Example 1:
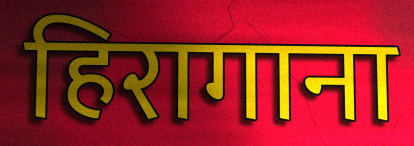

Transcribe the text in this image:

हिरागाना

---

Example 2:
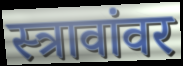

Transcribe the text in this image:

स्त्रावांवर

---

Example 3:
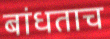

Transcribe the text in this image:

बांधताच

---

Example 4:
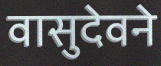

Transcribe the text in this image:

वासुदेवने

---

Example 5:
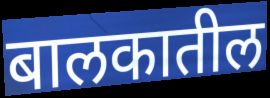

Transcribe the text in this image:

बालकातील